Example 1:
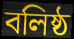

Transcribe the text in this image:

বলিষ্ঠ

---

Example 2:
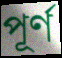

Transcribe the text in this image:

পূর্ণ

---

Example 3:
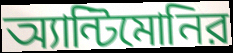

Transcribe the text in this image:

অ্যান্টিমোনির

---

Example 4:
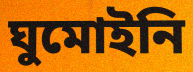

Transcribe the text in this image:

ঘুমোইনি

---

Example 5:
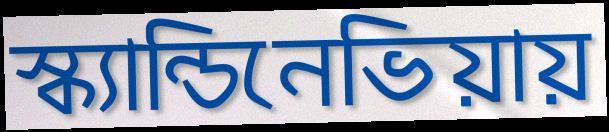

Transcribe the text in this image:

স্ক্যান্ডিনেভিয়ায়